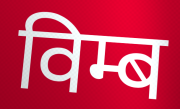
विम्ब